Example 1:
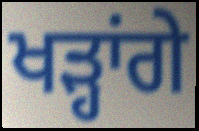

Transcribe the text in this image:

ਖੜ੍ਹਾਂਗੇ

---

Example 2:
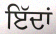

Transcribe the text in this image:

ਇੱਦਾਂ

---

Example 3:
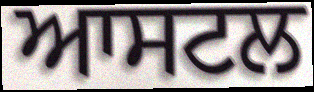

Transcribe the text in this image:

ਆਸਟਲ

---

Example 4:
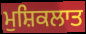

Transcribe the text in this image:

ਮੁਸ਼ਿਕਲਾਤ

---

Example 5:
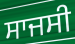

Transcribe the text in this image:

ਸਾਜਸੀ